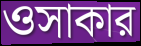
ওসাকার